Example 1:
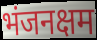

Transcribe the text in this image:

भंजनक्षम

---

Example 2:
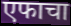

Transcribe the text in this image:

एफाचा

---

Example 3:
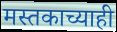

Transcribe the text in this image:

मस्तकाच्याही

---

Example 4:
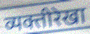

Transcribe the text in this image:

व्यक्तीरेखा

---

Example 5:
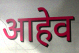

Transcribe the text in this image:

आहेव